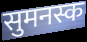
सुमनस्क